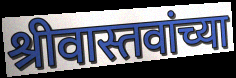
श्रीवास्तवांच्या